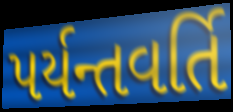
પર્યન્તવર્તિ